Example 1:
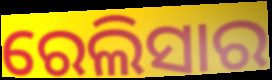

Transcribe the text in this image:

ରେଲିସାର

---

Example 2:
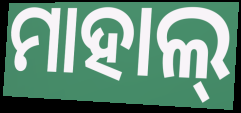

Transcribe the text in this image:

ମାହାଲ୍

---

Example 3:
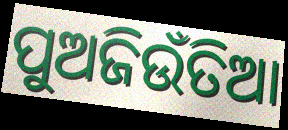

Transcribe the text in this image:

ପୁଅଜିଉଁତିଆ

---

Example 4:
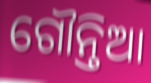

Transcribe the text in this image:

ଗୌନ୍ତିଆ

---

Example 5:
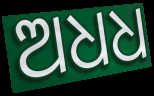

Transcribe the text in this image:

ଅଧଧ